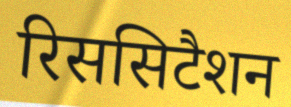
रिससिटैशन